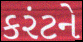
કરંટને